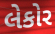
લેકોર